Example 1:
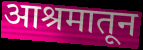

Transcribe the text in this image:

आश्रमातून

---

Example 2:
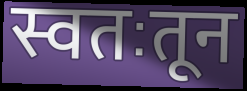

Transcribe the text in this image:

स्वतःतून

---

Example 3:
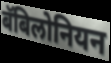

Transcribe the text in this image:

बॅबिलोनियन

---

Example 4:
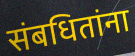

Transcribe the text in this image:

संबधितांना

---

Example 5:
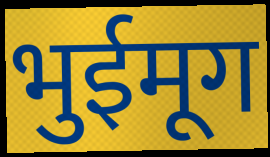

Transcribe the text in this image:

भुईमूग